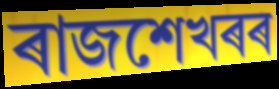
ৰাজশেখৰৰ